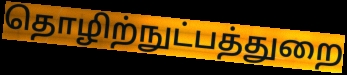
தொழிற்நுட்பத்துறை